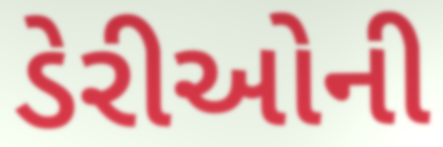
ડેરીઓની